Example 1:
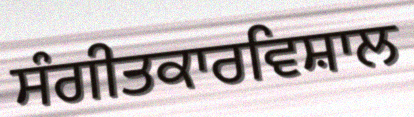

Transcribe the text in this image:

ਸੰਗੀਤਕਾਰਵਿਸ਼ਾਲ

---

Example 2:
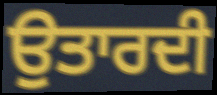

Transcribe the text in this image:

ਉਤਾਰਦੀ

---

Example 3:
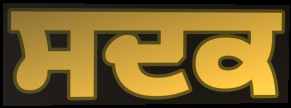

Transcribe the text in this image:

ਸਦਕ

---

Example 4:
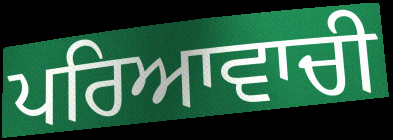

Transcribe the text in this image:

ਪਰਿਆਵਾਚੀ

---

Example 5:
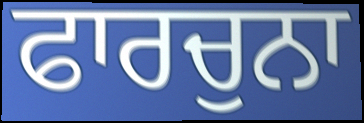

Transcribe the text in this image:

ਫਾਰਚੁਨਾ